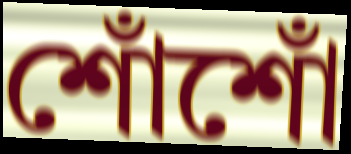
শোঁশোঁ